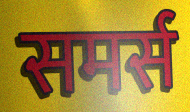
समर्स